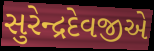
સુરેન્દ્રદેવજીએ